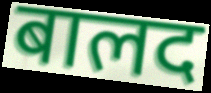
बालद